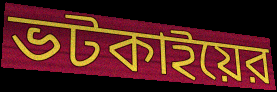
ভটকাইয়ের